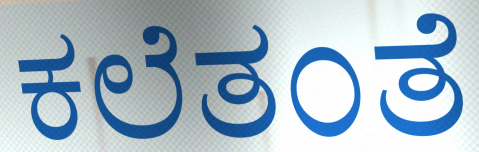
ಕಲೆತಂತೆ